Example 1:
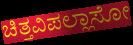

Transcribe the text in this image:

ಚಿತ್ತವಿಪಲ್ಲಾಸೋ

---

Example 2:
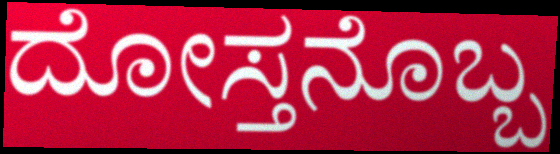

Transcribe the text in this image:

ದೋಸ್ತನೊಬ್ಬ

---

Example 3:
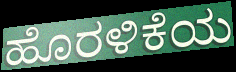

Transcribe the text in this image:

ಹೊರಳಿಕೆಯ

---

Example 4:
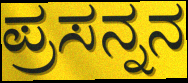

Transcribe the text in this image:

ಪ್ರಸನ್ನನ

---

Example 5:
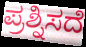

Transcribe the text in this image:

ಪ್ರಶ್ನಿಸದೆ